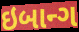
ઇબાન્ગ